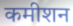
कमीशन